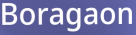
Boragaon